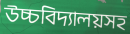
উচ্চবিদ্যালয়সহ